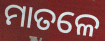
ମାତଳେ